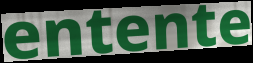
entente